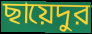
ছায়েদুর